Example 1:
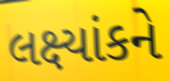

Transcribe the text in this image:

લક્ષ્યાંકને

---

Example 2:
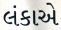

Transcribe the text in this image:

લંકાએ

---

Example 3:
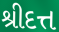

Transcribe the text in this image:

શ્રીદત્ત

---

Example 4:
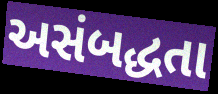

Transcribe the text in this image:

અસંબદ્ધતા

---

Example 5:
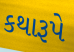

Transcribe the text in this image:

કથારૂપે